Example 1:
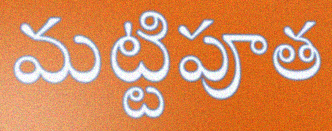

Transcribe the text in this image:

మట్టిపూత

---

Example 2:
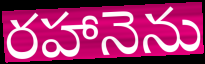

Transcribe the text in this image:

రహానెను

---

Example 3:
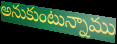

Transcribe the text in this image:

అనుకుంటున్నాము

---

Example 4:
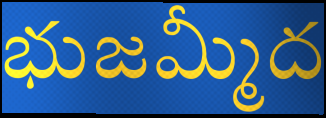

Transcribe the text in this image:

భుజమ్మీద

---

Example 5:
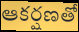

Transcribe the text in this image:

ఆకర్షణతో